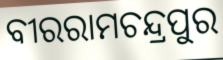
ବୀରରାମଚନ୍ଦ୍ରପୁର